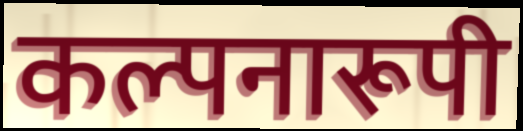
कल्पनारूपी